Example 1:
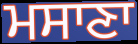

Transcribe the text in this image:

ਮਸਾਣਾ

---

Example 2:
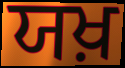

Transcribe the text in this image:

ਯਖ਼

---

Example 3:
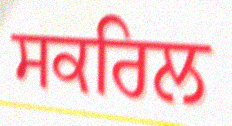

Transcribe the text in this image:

ਸਕਰਿਲ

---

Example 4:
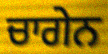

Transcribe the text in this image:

ਚਾਗੇਨ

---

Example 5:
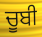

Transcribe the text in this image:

ਚੂਬੀ